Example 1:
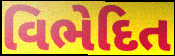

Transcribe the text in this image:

વિભેદિત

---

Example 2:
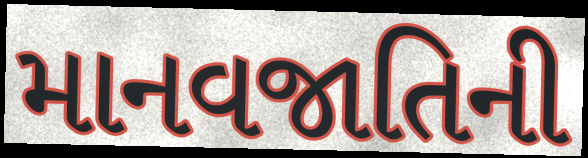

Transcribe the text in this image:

માનવજાતિની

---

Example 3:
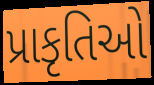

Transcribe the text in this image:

પ્રાકૃતિઓ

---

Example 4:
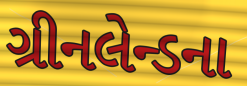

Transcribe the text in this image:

ગ્રીનલેન્ડના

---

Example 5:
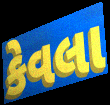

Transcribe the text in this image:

કેવલા